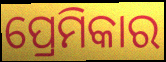
ପ୍ରେମିକାର